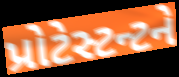
પ્રોટેસ્ટન્ટને